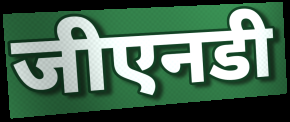
जीएनडी